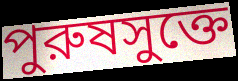
পুরুষসুক্তে